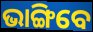
ଭାଙ୍ଗିବେ